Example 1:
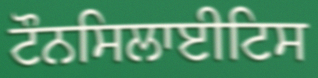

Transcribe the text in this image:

ਟੌਨਸਿਲਾਈਟਿਸ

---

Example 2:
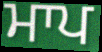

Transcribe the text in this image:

ਮਾਪ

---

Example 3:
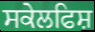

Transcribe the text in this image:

ਸਕੇਲਫਿਸ਼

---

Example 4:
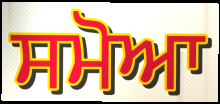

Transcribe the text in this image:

ਸਮੋਆ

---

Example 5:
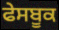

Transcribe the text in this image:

ਫੇਸਬੂਕ